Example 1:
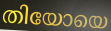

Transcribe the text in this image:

തിയോയെ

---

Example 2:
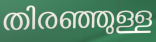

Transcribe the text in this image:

തിരഞ്ഞുള്ള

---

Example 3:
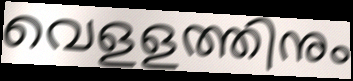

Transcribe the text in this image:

വെളളത്തിനും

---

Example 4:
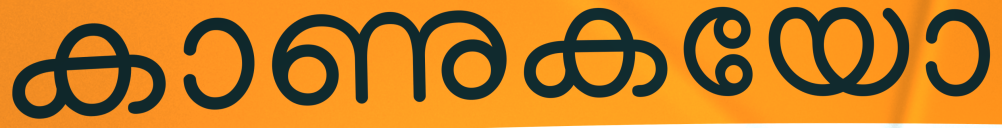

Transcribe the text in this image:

കാണുകയോ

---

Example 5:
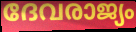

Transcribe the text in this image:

ദേവരാജ്യം